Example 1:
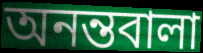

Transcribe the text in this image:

অনন্তবালা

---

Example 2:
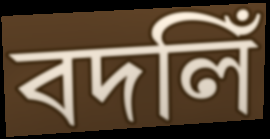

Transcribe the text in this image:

বদলিঁ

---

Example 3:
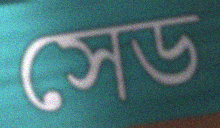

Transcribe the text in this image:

সেড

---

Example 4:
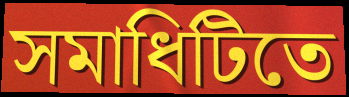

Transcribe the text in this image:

সমাধিটিতে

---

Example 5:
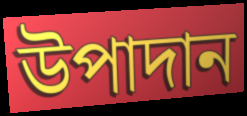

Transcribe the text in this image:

উপাদান